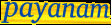
payanam